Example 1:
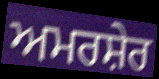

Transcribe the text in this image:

ਅਮਰਸ਼ੇਰ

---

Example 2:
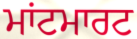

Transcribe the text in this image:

ਮਾਂਟਮਾਰਟ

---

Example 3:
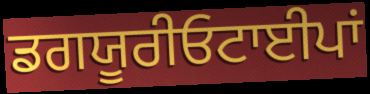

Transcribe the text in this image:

ਡਗਯੂਰੀਓਟਾਈਪਾਂ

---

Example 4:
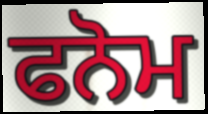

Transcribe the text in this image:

ਫਨੋਮ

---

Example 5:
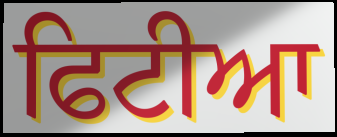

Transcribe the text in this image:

ਫਿਟੀਆ